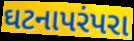
ઘટનાપરંપરા